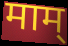
माम्